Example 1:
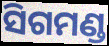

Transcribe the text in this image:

ସିଗମଣ୍ଡ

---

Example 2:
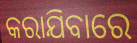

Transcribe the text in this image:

କରାଯିବାରେ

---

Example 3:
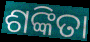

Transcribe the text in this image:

ଶଙ୍କିତା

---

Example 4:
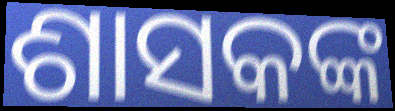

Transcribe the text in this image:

ଶାସକଙ୍କ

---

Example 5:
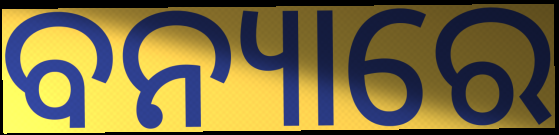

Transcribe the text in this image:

ବନ୍ୟାରେ